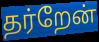
தர்றேன்